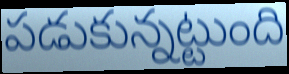
పడుకున్నట్టుంది